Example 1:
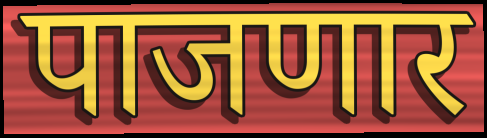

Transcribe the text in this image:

पाजणार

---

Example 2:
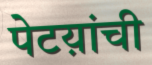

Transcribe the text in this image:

पेटय़ांची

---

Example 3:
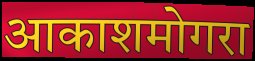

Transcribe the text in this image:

आकाशमोगरा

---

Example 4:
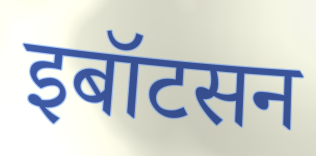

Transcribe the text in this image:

इबॉटसन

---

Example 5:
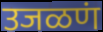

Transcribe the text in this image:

उजळणं